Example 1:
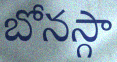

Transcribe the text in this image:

బోనస్గా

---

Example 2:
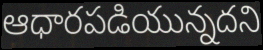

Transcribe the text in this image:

ఆధారపడియున్నదని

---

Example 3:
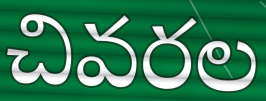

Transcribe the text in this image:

చివరల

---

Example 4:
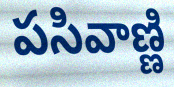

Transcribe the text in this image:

పసివాణ్ణి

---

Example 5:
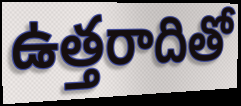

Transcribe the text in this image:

ఉత్తరాదితో